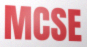
MCSE